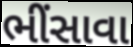
ભીંસાવા